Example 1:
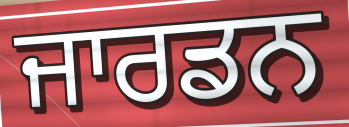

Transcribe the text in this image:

ਜਾਰਡਨ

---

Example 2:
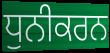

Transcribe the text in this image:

ਧੁਨੀਕਰਨ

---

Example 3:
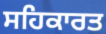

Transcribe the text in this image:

ਸਹਿਕਾਰਤ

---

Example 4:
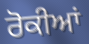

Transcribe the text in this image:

ਰੋਕੀਆਂ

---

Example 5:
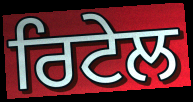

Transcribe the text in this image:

ਰਿਟੇਲ